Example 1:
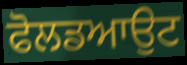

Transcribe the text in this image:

ਫੋਲਡਆਉਟ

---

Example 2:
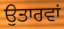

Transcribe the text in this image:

ਉਤਾਰਵਾਂ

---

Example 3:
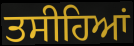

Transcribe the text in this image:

ਤਸੀਹਿਆਂ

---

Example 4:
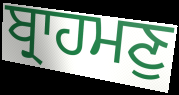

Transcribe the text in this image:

ਬ੍ਰਾਹਮਣੁ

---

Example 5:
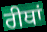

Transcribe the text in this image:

ਰੀਥਾਂ